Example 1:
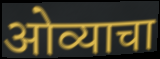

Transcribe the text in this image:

ओव्याचा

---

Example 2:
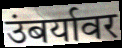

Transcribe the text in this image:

उंबर्यावर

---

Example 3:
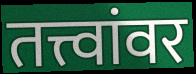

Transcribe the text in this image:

तत्त्वांवर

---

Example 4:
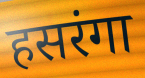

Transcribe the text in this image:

हसरंगा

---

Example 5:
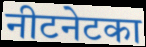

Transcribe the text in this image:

नीटनेटका